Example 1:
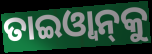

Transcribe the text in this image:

ତାଇଓ୍ବାନ୍‌କୁ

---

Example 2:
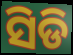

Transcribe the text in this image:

ସିଡି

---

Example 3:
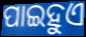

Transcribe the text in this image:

ପାଇହୁଏ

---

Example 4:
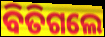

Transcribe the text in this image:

ବିତିଗଲେ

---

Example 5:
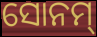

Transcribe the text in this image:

ସୋନମ୍